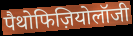
पैथोफिज़ियोलॉजी